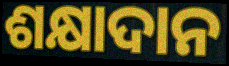
ଶକ୍ଷାଦାନ